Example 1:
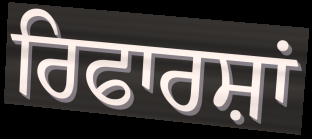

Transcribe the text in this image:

ਰਿਫਾਰਸ਼ਾਂ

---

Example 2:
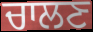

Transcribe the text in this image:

ਚਾਲਣ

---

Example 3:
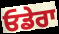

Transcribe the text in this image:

ਓਡੇਰਾ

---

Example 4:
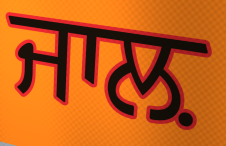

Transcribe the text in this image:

ਜਾਲ਼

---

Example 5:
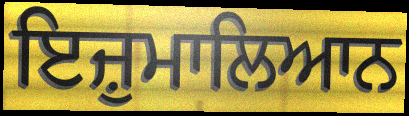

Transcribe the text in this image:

ਇਜ਼ੁਮਾਲਿਆਨ